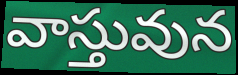
వాస్తువున